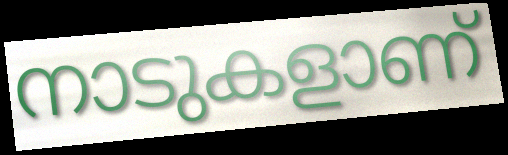
നാടുകളാണ്